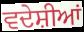
ਵਦੇਸ਼ੀਆਂ